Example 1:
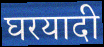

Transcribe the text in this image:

घरयादी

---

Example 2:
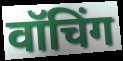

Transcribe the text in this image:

वॉचिंग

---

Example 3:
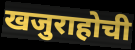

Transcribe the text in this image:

खजुराहोची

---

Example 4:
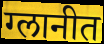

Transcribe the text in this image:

ग्लानीत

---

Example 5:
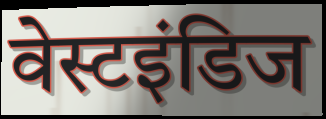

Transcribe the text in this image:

वेस्टइंडिज